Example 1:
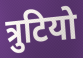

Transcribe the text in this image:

त्रुटियो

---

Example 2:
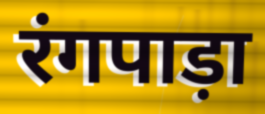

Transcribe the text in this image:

रंगपाड़ा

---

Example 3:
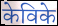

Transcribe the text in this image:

केविके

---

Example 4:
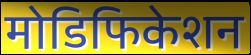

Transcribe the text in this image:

मोडिफिकेशन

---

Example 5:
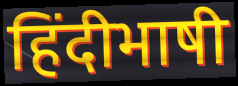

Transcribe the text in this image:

हिंदीभाषी